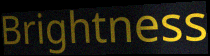
Brightness